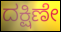
ದಕ್ಷಿಣೇ